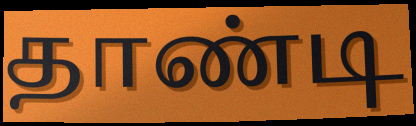
தாண்டி